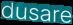
dusare